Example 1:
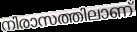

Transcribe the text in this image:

നിരാസത്തിലാണ്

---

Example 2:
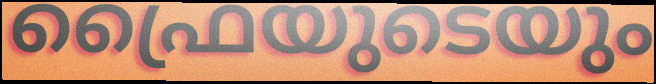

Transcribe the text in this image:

ഫ്രൈയുടെയും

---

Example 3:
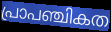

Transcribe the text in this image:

പ്രാപഞ്ചികത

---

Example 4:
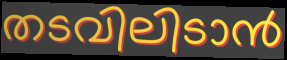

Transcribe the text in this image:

തടവിലിടാൻ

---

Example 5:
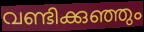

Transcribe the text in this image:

വണ്ടിക്കുഞ്ഞും